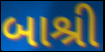
બાશ્રી